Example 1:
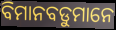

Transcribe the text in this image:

ବିମାନବଡୁମାନେ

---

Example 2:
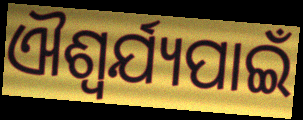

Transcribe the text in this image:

ଐଶ୍ୱର୍ଯ୍ୟପାଇଁ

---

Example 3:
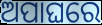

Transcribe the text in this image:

ଅପାଘରେ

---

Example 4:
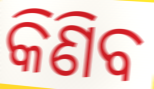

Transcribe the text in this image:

କିଣିବ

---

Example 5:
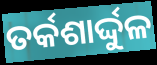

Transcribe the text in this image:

ତର୍କଶାର୍ଦ୍ଦୁଳ